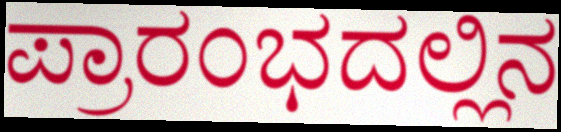
ಪ್ರಾರಂಭದಲ್ಲಿನ